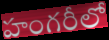
హంగరీలో